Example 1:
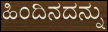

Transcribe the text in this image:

ಹಿಂದಿನದನ್ನು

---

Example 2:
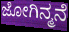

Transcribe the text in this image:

ಜೋಗಿನ್ಮನೆ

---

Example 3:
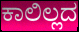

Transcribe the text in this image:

ಕಾಲಿಲ್ಲದ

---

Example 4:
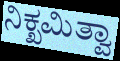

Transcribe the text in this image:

ನಿಕ್ಖಮಿತ್ವಾ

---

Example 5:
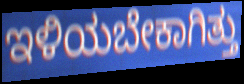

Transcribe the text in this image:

ಇಳಿಯಬೇಕಾಗಿತ್ತು